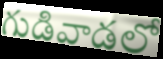
గుడివాడలో